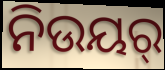
ନିଉୟର୍